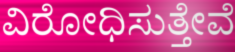
ವಿರೋಧಿಸುತ್ತೇವೆ